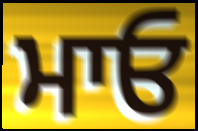
ਮਾਓ